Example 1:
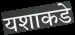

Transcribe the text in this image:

यशाकडे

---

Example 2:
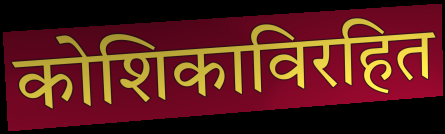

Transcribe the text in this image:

कोशिकाविरहित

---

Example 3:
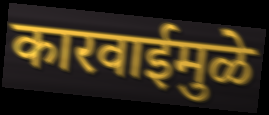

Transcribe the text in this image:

कारवाईमुळे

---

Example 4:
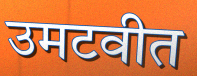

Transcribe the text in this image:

उमटवीत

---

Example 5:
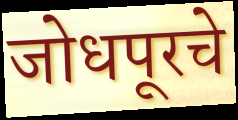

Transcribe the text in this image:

जोधपूरचे